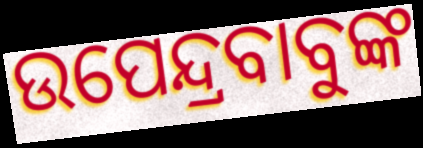
ଉପେନ୍ଦ୍ରବାବୁଙ୍କ